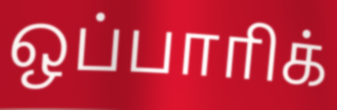
ஒப்பாரிக்